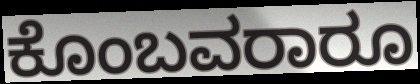
ಕೊಂಬವರಾರೂ